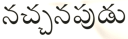
నచ్చనపుడు